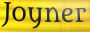
Joyner